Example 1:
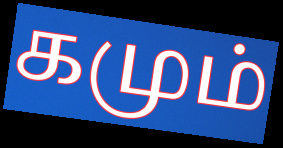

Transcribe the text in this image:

கமும்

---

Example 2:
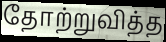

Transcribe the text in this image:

தோற்றுவித்த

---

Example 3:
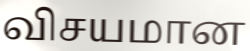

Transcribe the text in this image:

விசயமான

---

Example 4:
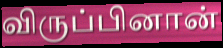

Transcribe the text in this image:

விருப்பினான்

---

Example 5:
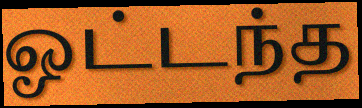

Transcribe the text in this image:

ஓட்டந்த